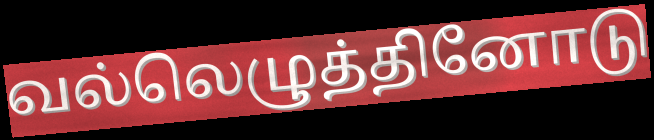
வல்லெழுத்தினோடு